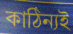
কাঠিন্যই